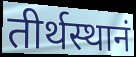
तीर्थस्थानं